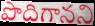
పొదిగానని